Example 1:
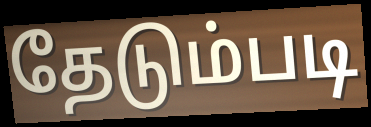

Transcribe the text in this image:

தேடும்படி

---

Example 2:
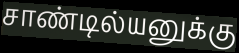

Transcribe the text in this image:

சாண்டில்யனுக்கு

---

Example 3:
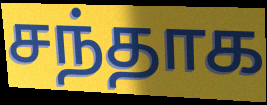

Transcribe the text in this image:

சந்தாக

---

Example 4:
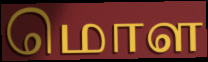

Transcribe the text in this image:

மொள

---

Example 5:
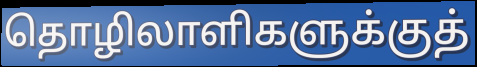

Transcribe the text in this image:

தொழிலாளிகளுக்குத்